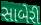
સાબેરી